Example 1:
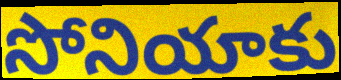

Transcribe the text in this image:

సోనియాకు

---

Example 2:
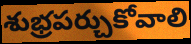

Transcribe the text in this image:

శుభ్రపర్చుకోవాలి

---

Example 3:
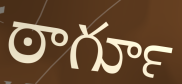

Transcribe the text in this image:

ఠాగూర్‍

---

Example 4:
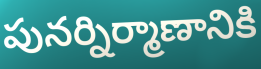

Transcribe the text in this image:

పునర్నిర్మాణానికి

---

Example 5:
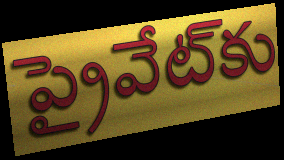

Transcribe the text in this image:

ప్రైవేట్‌కు